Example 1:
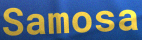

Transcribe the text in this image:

Samosa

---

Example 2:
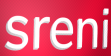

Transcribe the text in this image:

sreni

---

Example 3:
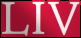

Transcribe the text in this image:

LIV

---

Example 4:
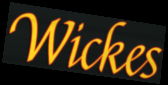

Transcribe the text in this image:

Wickes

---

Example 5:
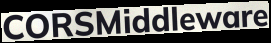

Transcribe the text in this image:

CORSMiddleware